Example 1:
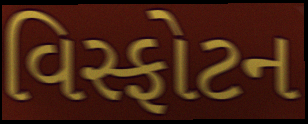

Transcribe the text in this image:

વિસ્ફોટન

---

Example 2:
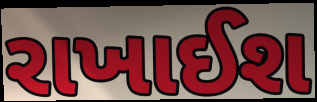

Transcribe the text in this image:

રાખાઈશ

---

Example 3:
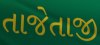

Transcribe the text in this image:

તાજેતાજી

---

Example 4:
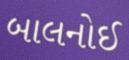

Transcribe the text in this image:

બાલનોઈ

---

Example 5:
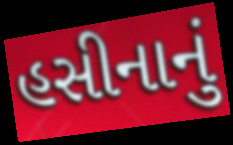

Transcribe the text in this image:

હસીનાનું